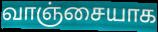
வாஞ்சையாக